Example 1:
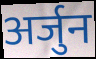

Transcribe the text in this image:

अर्जुन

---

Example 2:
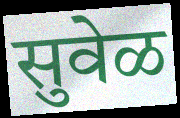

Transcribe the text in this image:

सुवेळ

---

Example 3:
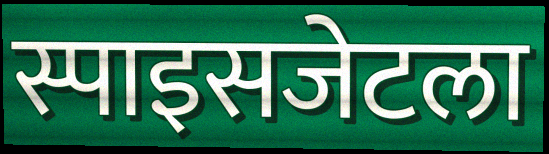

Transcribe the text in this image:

स्पाइसजेटला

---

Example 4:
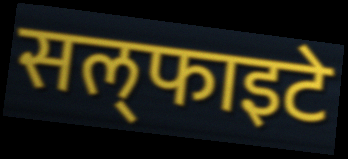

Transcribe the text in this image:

सल्फाइटे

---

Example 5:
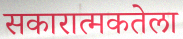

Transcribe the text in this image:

सकारात्मकतेला